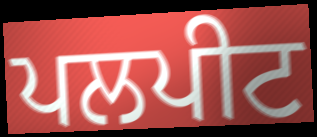
ਪਲਪੀਟ